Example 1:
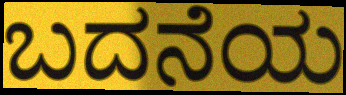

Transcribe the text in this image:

ಬದನೆಯ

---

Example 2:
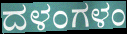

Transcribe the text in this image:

ದಳಂಗಳಂ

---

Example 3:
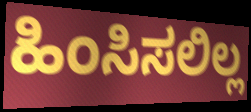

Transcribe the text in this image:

ಹಿಂಸಿಸಲಿಲ್ಲ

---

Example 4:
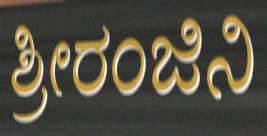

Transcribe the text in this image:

ಶ್ರೀರಂಜಿನಿ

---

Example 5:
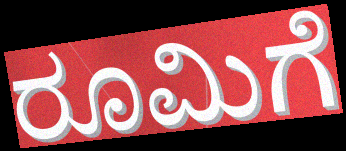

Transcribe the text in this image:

ರೂಮಿಗೆ